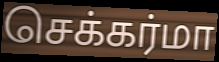
செக்கர்மா